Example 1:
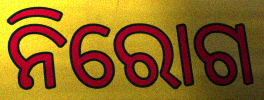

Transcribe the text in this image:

ନିରୋଗ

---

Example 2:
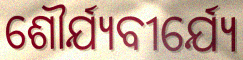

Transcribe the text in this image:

ଶୌର୍ଯ୍ୟବୀର୍ଯ୍ୟେ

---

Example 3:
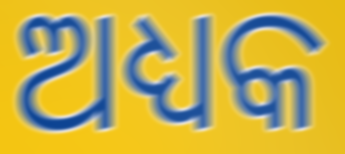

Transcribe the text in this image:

ଅଧ୍ଯକ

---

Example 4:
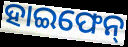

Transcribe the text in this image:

ହାଇଫେନ୍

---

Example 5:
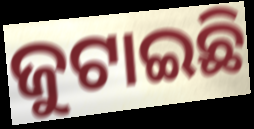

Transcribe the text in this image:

ଜୁଟାଇଛି